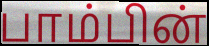
பாம்பின்